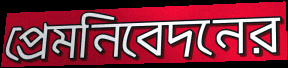
প্রেমনিবেদনের